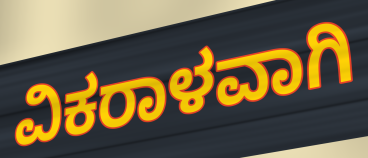
ವಿಕರಾಳವಾಗಿ